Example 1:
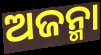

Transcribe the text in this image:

ଅଜନ୍ମା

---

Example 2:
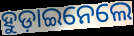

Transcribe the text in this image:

ହୁଡ଼ାଇନେଲେ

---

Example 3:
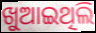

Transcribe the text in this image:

ଖୁଆଇଥିଲି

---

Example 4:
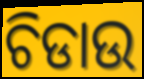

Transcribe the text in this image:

ଚିଡାଉ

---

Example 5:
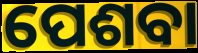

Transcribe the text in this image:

ପେଶବା